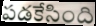
పడకేసింది